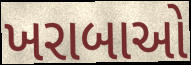
ખરાબાઓ